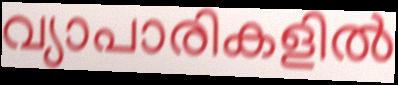
വ്യാപാരികളിൽ